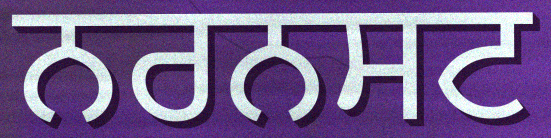
ਨਰਨਸਟ